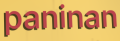
paninan